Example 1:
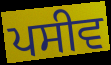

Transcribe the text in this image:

ਪਸੀਵ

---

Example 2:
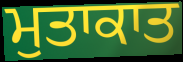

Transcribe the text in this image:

ਮੁਤਾਕਾਤ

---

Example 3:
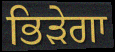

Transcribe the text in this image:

ਭਿੜੇਗਾ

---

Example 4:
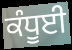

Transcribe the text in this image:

ਕੰਧੂਈ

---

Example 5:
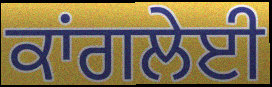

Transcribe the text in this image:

ਕਾਂਗਲੇਈ